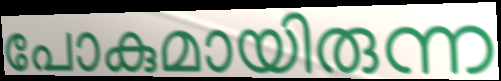
പോകുമായിരുന്ന